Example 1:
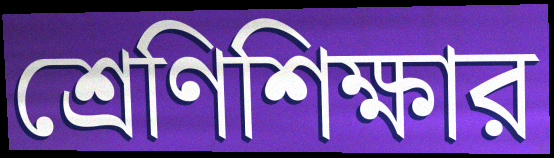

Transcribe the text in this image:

শ্রেণিশিক্ষার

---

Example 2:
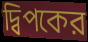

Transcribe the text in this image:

দ্বিপকের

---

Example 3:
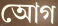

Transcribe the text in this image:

আেগ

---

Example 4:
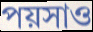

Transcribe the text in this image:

পয়সাও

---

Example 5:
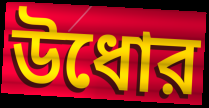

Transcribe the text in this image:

উধোর